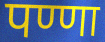
पण्णा